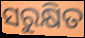
ସରୁକ୍ଷିତ